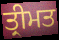
ਤ੍ਰੀਮਤ